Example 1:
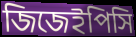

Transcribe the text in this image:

জিজেইপিসি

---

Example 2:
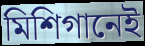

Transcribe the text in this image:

মিশিগানেই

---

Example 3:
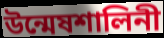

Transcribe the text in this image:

উন্মেষশালিনী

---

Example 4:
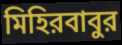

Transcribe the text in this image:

মিহিরবাবুর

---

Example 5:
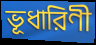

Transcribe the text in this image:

ভূধারিণী